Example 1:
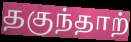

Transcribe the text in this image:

தகுந்தாற்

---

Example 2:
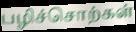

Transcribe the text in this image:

பழிச்சொற்கள்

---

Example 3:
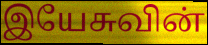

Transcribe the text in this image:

இயேசுவின்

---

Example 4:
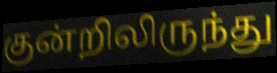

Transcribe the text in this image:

குன்றிலிருந்து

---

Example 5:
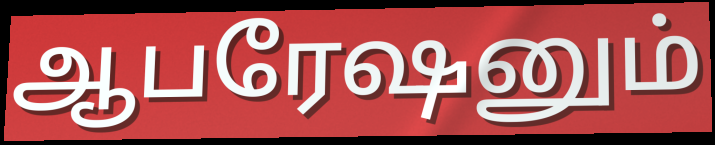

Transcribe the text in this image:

ஆபரேஷனும்